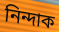
নিন্দাক